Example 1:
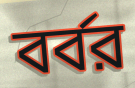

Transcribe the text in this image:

বর্বর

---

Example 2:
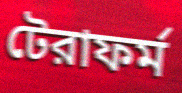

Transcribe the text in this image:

টেরাফর্ম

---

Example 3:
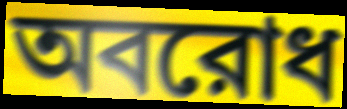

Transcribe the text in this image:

অবরোধ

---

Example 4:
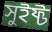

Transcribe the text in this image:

সুইফ্ট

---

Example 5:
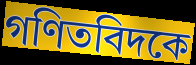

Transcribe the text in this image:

গণিতবিদকে